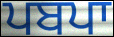
ਪਬਪਾ